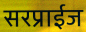
सरप्राईज